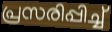
പ്രസരിപ്പിച്ച്